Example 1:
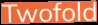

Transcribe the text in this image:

Twofold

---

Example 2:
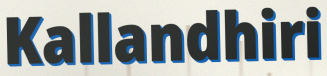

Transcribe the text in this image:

Kallandhiri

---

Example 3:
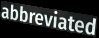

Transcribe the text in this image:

abbreviated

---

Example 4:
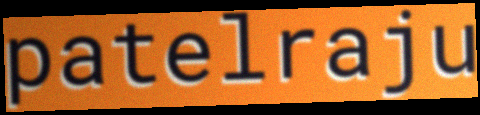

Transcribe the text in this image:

patelraju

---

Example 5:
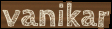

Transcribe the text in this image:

vanikar